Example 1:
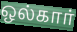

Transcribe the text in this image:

ஒல்கார்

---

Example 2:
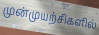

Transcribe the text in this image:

முன்முயற்சிகளில்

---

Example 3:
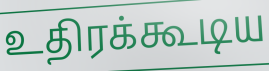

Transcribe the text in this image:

உதிரக்கூடிய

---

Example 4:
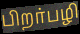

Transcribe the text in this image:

பிறர்பழி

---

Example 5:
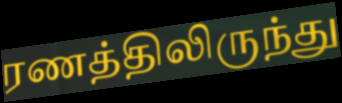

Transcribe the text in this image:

ரணத்திலிருந்து